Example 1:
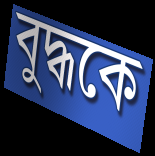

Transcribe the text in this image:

বুদ্ধকে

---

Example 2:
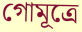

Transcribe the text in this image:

গোমূত্রে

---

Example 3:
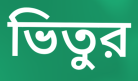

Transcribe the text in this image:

ভিতুর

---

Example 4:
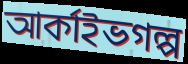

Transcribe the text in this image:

আর্কাইভগল্প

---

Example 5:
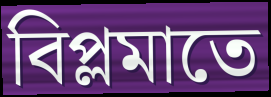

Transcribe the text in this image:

বিপ্লমাতে